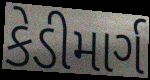
કેડીમાર્ગ